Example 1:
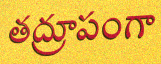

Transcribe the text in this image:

తద్రూపంగా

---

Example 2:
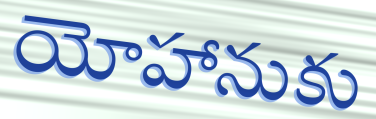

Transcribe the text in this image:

యోహానుకు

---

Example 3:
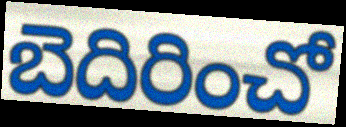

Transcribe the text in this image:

బెదిరించో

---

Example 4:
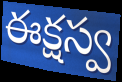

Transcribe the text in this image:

ఈక్షస్వ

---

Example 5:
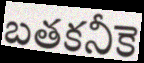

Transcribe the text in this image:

బతకనీకె